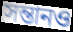
সন্তানও